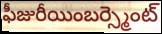
ఫీజురీయింబర్స్మెంట్